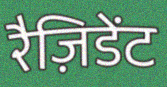
रैज़िडेंट